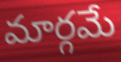
మార్గమే